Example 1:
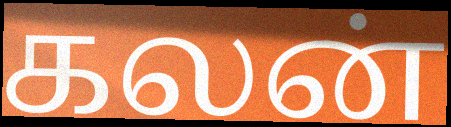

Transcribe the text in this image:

கலன்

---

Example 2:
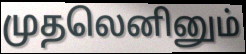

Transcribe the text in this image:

முதலெனினும்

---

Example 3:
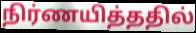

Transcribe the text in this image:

நிர்ணயித்ததில்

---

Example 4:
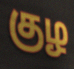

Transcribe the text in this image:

குழ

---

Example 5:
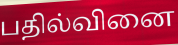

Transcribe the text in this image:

பதில்வினை